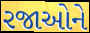
રજાઓને